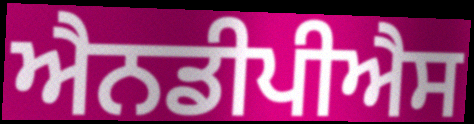
ਐਨਡੀਪੀਐਸ